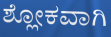
ಶ್ಲೋಕವಾಗಿ